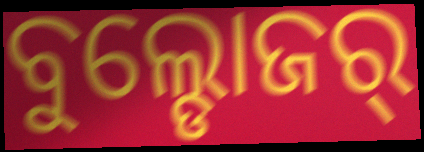
ବୁଲ୍ଡୋଜର୍